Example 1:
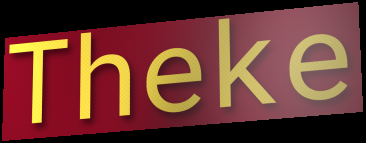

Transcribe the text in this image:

Theke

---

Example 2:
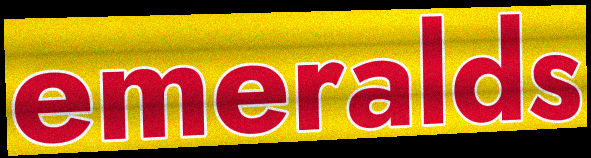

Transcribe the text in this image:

emeralds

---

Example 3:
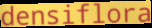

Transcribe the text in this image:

densiflora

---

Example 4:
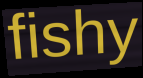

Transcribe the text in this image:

fishy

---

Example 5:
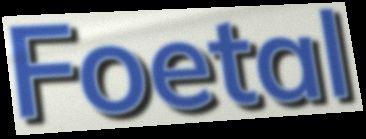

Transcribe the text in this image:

Foetal